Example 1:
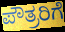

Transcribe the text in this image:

ಪೌತ್ರರಿಗೆ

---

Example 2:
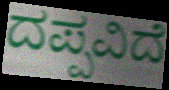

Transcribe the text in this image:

ದಪ್ಪವಿದೆ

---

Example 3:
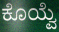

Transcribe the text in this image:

ಕೊಯ್ವೆ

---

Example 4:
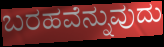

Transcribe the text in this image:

ಬರಹವೆನ್ನುವುದು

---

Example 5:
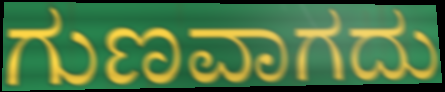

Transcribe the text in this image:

ಗುಣವಾಗದು